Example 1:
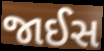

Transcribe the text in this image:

જાઈસ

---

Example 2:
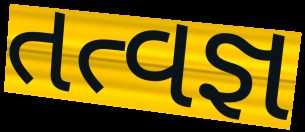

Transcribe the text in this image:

તત્વજ્ઞ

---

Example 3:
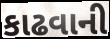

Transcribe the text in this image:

કાઢવાની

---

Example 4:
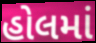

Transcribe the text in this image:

હોલમાં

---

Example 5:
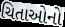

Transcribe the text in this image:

ચિતાઓનો